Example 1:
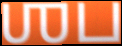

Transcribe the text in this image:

ஶப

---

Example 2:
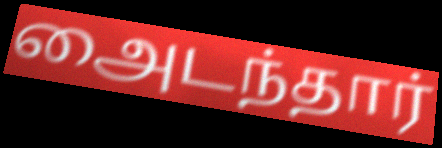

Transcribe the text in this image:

அைடந்தார்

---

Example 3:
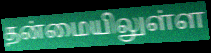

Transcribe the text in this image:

தன்மையிலுள்ள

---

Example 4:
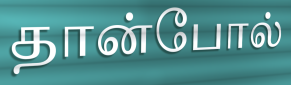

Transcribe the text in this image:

தான்போல்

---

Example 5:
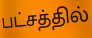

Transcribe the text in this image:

பட்சத்தில்